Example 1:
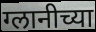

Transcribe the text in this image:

ग्लानीच्या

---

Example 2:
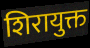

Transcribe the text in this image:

शिरायुक्त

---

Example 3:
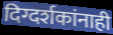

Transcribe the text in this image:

दिग्दर्शकांनाही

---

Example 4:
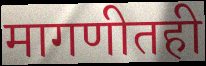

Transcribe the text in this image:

मागणीतही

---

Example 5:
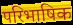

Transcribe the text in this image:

परिभाषिक